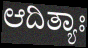
ಆದಿತ್ಯಾಃ